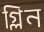
গ্লিন